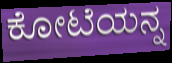
ಕೋಟೆಯನ್ನ